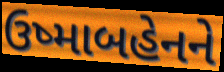
ઉષ્માબહેનને